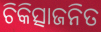
ଚିକିତ୍ସାଜନିତ